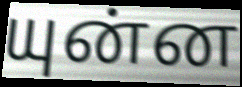
யுன்ன